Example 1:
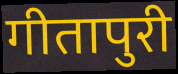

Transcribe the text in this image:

गीतापुरी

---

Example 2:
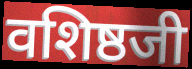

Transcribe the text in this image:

वशिष्ठजी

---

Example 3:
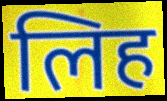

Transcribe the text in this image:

लिह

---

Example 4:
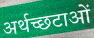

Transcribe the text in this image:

अर्थच्छटाओं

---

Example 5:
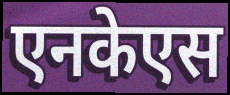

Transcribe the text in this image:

एनकेएस